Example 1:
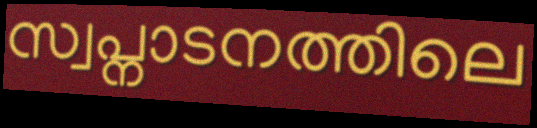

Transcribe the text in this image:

സ്വപ്നാടനത്തിലെ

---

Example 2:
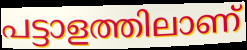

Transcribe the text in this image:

പട്ടാളത്തിലാണ്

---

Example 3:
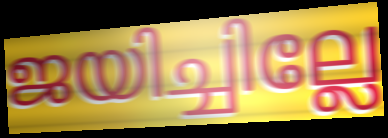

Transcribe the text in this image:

ജയിച്ചില്ലേ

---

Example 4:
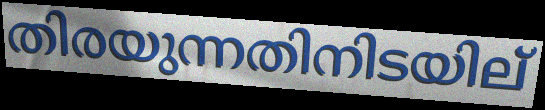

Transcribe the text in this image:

തിരയുന്നതിനിടയില്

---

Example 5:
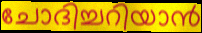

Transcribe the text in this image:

ചോദിച്ചറിയാൻ